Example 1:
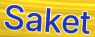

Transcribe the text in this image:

Saket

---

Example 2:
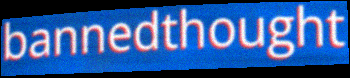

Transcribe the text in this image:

bannedthought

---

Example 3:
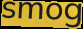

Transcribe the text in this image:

smog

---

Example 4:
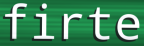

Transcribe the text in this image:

firte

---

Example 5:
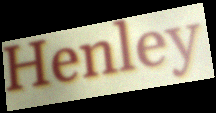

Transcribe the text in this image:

Henley